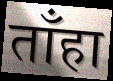
ताँहा